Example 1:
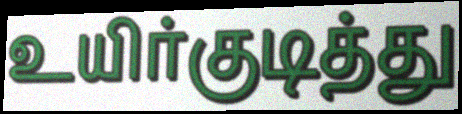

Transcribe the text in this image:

உயிர்குடித்து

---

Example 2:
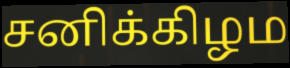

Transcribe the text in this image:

சனிக்கிழம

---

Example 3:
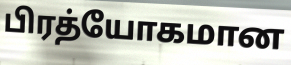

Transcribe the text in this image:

பிரத்யோகமான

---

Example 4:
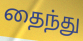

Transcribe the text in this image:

தைந்து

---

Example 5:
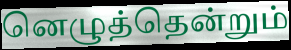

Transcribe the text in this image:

னெழுத்தென்றும்